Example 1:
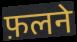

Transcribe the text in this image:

फ़लने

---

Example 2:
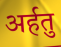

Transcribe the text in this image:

अर्हतु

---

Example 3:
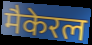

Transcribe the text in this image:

मैकेरल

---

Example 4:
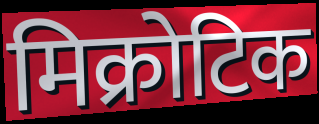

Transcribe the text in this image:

मिक्रोटिक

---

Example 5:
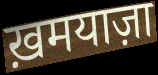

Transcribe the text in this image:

ख़मयाज़ा